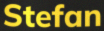
Stefan